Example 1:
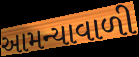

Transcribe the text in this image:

આમન્યાવાળી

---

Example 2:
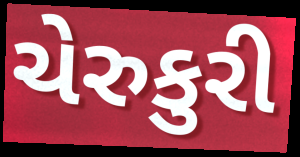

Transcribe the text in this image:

ચેરુકુરી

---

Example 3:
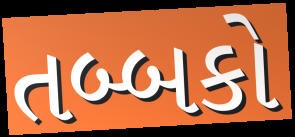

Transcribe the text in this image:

તબ્બકો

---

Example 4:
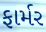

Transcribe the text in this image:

ફાર્મર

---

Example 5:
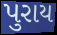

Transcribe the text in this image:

પુરાય